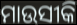
ମାଉସୀକି